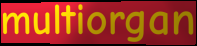
multiorgan